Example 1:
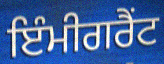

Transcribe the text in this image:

ਇੰਮੀਗਰੈਂਟ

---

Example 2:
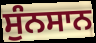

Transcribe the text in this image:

ਸੁੰਨਸਾਨ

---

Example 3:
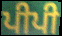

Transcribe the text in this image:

ਪੀਪੀ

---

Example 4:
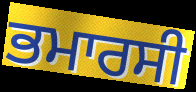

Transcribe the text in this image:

ਭਮਾਰਸੀ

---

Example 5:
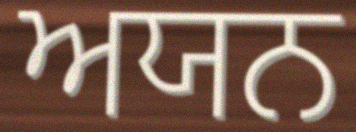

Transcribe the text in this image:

ਅਯਨ